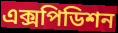
এক্সপিডিশন